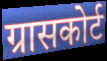
ग्रासकोर्ट